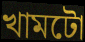
খামটো